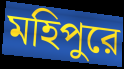
মহিপুরে